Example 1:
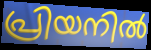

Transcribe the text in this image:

പ്രിയനിൽ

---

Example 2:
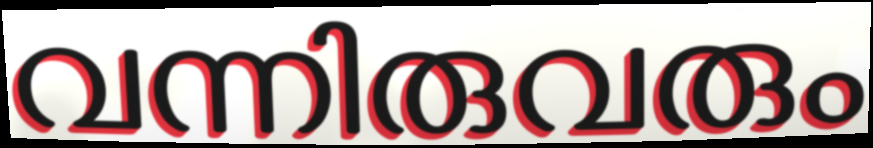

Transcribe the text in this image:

വന്നിരുവരും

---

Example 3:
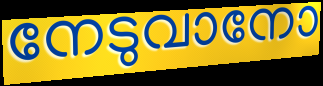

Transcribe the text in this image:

നേടുവാനോ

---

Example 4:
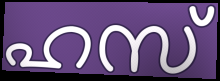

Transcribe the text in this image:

ഹസ്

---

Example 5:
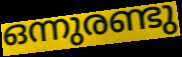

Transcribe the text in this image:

ഒന്നുരണ്ടു